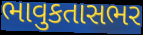
ભાવુકતાસભર